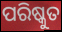
ପରିଷ୍କୁତ